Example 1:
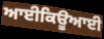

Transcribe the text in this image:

ਆਈਕਿਊਆਈ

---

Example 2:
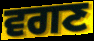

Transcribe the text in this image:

ਵਗਣ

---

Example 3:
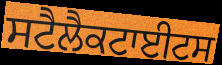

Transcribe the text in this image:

ਸਟੈਲੈਕਟਾਈਟਸ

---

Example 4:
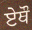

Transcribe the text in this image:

ਏਥੌ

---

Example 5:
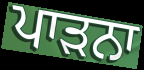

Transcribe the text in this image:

ਪਾੜਨਾ